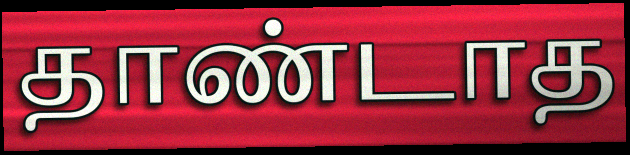
தாண்டாத